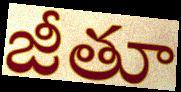
జీతూ